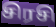
சிரசி